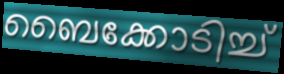
ബൈക്കോടിച്ച്